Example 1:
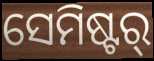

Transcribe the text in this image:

ସେମିଷ୍ଟର୍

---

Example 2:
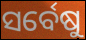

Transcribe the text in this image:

ସର୍ବେଷୁ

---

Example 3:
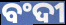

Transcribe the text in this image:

ବଂଦୀ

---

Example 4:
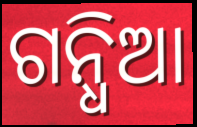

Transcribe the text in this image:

ଗନ୍ଧିଆ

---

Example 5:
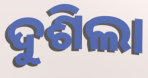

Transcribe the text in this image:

ଦୁଶିଲା